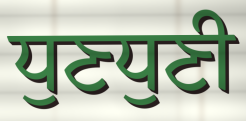
ਧੁਣਧੁਣੀ